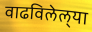
वाढविलेल्या